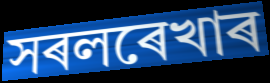
সৰলৰেখাৰ